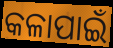
କଳାପାଇଁ